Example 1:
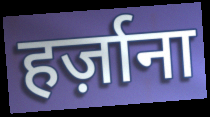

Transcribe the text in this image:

हर्ज़ाना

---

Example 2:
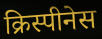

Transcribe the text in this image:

क्रिस्पीनेस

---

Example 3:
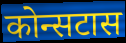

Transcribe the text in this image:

कोन्सटास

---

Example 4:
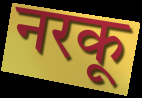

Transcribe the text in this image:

नरकू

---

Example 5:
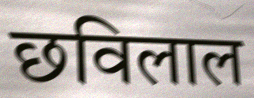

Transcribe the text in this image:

छविलाल